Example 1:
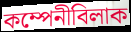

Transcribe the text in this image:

কম্পেনীবিলাক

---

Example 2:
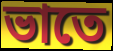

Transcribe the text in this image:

ভাতে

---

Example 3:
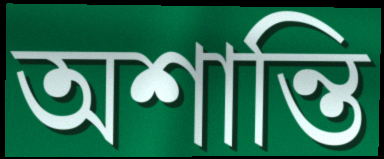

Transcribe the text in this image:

অশান্তি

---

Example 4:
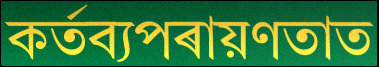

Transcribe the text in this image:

কৰ্তব্যপৰায়ণতাত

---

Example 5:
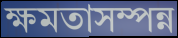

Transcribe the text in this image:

ক্ষমতাসম্পন্ন